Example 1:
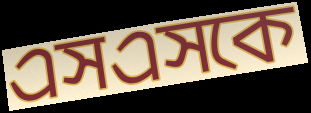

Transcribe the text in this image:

এসএসকে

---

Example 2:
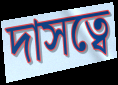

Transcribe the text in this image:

দাসত্বে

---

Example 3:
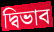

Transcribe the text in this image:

দ্বিভাব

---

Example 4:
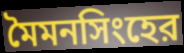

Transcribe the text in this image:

মৈমনসিংহের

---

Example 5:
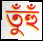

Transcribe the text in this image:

তুঁহুঁ